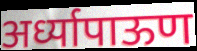
अर्ध्यापाऊण